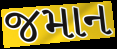
જમાન